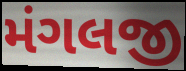
મંગલજી